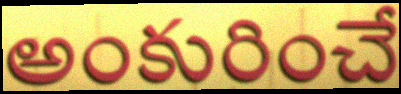
అంకురించే